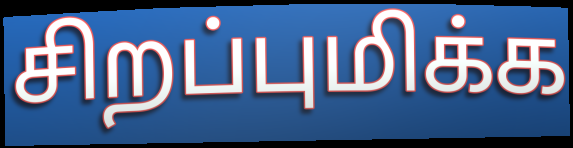
சிறப்புமிக்க